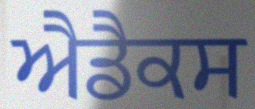
ਐਡੈਕਸ